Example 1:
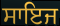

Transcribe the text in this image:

ਸਾਇਜ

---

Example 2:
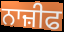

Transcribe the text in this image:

ਨਾਜ਼ੀਫ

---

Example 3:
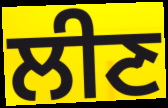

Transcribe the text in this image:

ਲੀਣ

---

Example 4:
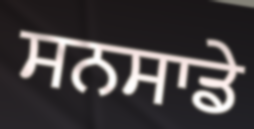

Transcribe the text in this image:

ਸਨਸਾਡੇ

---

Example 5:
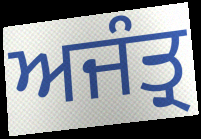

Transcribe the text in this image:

ਅਜੰਤ੍ਰ